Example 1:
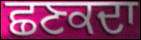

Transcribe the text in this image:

ਛਣਕਦਾ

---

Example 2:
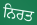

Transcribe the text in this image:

ਨਿਰਤ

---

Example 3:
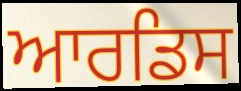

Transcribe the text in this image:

ਆਰਡਿਸ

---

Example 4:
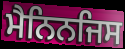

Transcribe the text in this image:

ਮੈਨਿਨਜਿਸ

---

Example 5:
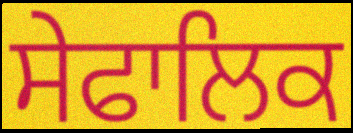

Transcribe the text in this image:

ਸੇਫਾਲਿਕ